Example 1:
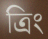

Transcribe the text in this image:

ত্রিং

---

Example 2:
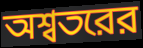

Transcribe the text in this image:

অশ্বতরের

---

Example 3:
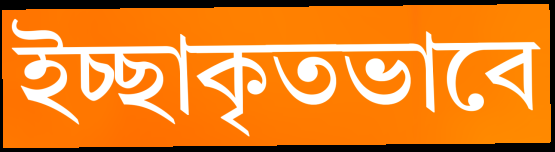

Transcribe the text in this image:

ইচ্ছাকৃতভাবে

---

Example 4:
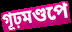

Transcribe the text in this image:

গূঢ়মণ্ডপে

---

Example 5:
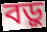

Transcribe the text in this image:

বড়ু